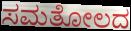
ಸಮತೋಲದ